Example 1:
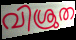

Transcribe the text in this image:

വിശ്രുത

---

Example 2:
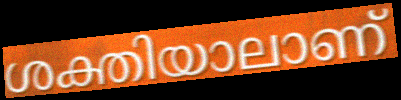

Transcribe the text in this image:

ശക്തിയാലാണ്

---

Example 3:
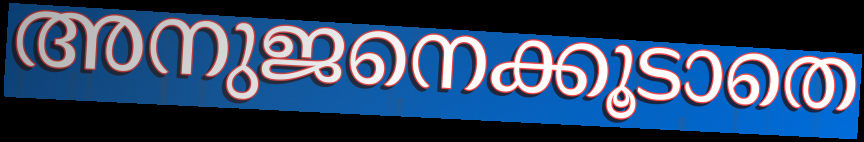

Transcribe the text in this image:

അനുജനെക്കൂടാതെ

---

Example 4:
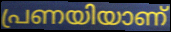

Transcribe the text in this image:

പ്രണയിയാണ്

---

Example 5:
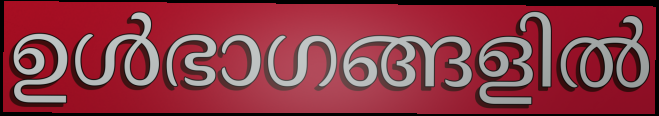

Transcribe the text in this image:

ഉൾഭാഗങ്ങളിൽ